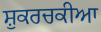
ਸ਼ੁਕਰਚਕੀਆ